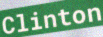
Clinton